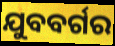
ଯୁବବର୍ଗର